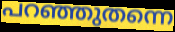
പറഞ്ഞുതന്നെ